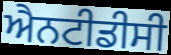
ਐਨਟੀਡੀਸੀ